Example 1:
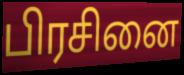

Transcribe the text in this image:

பிரசினை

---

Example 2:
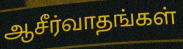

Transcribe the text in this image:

ஆசீர்வாதங்கள்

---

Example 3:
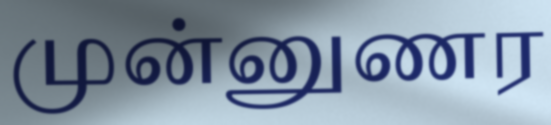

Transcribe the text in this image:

முன்னுணர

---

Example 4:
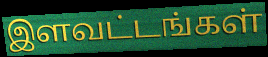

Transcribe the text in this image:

இளவட்டங்கள்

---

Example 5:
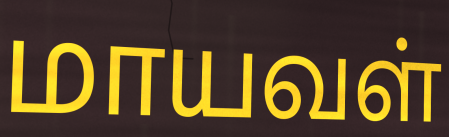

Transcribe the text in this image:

மாயவள்